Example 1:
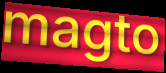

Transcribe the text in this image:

magto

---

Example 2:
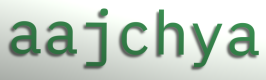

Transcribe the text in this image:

aajchya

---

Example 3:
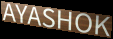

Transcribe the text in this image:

AYASHOK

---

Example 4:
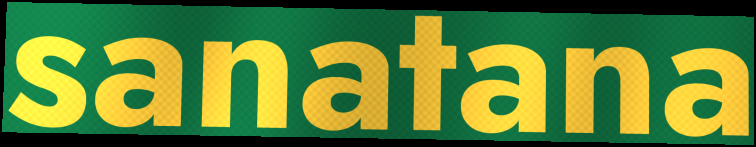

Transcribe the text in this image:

sanatana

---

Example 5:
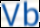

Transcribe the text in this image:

Vb